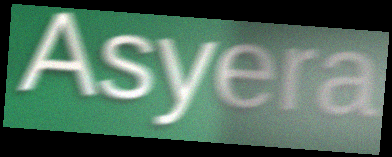
Asyera